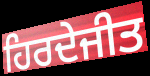
ਹਿਰਦੇਜੀਤ